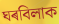
ঘৰবিলাক